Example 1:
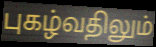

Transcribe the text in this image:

புகழ்வதிலும்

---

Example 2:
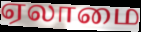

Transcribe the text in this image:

ஏலாமை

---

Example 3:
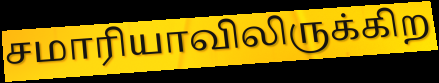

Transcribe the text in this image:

சமாரியாவிலிருக்கிற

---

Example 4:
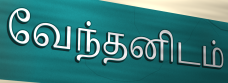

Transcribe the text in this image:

வேந்தனிடம்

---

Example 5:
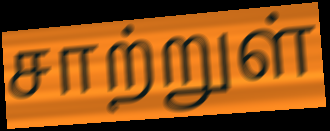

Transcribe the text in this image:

சாற்றுள்